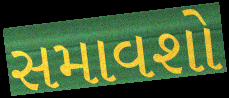
સમાવશો